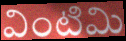
వింటిమి